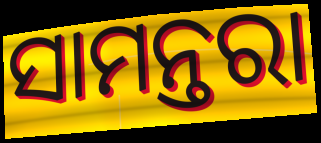
ସାମନ୍ତରା